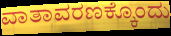
ವಾತಾವರಣಕ್ಕೊಂದು